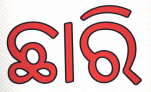
ଛାରି